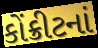
કોંક્રીટનાં